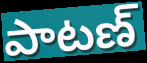
పాటణ్